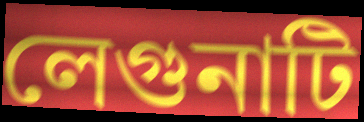
লেগুনাটি